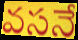
వసనే